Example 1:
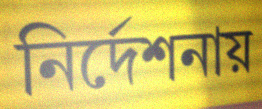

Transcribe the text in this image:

নির্দেশনায়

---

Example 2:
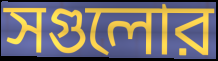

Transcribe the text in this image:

সগুলোর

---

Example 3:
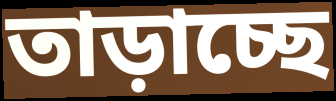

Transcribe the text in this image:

তাড়াচ্ছে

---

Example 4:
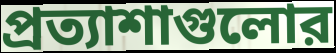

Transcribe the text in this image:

প্রত্যাশাগুলোর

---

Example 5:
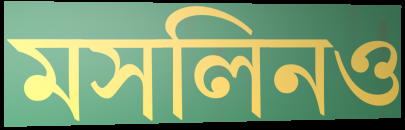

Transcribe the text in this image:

মসলিনও